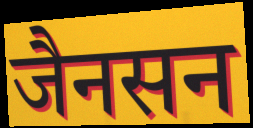
जैनसन